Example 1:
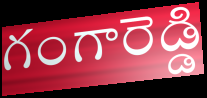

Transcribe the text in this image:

గంగారెడ్డి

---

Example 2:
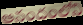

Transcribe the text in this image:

ఆనందంలోని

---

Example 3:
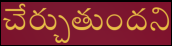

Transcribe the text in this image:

చేర్చుతుందని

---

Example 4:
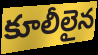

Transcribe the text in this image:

కూలీలైన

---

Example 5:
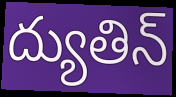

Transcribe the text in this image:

ద్యుతిన్